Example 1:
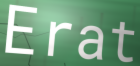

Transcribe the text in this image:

Erat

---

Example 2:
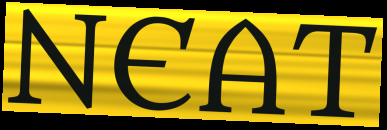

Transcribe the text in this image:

NEAT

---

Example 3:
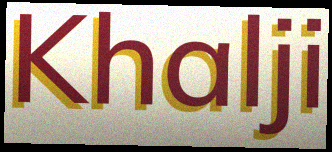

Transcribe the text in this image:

Khalji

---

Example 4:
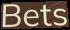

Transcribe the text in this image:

Bets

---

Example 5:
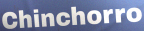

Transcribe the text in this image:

Chinchorro